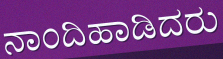
ನಾಂದಿಹಾಡಿದರು